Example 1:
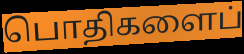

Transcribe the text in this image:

பொதிகளைப்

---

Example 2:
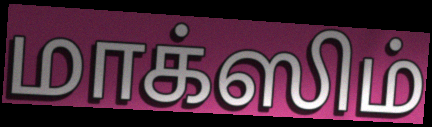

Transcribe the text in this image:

மாக்ஸிம்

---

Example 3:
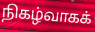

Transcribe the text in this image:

நிகழ்வாகக்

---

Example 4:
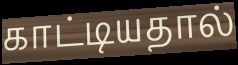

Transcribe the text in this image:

காட்டியதால்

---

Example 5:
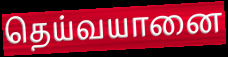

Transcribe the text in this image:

தெய்வயானை